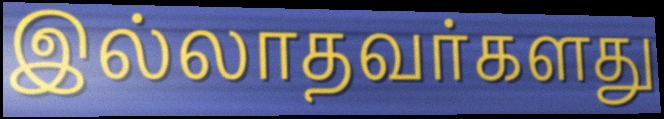
இல்லாதவர்களது